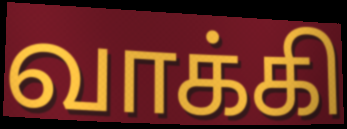
வாக்கி